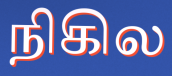
நிகில